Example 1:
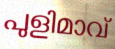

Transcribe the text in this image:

പുളിമാവ്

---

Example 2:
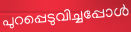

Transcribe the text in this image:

പുറപ്പെടുവിച്ചപ്പോൾ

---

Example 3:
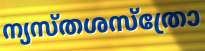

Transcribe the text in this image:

ന്യസ്തശസ്ത്രോ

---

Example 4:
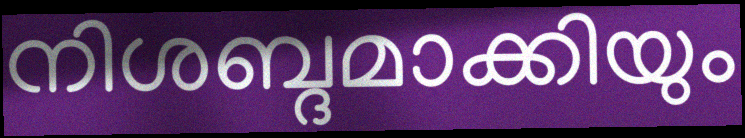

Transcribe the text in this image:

നിശബ്ദമാക്കിയും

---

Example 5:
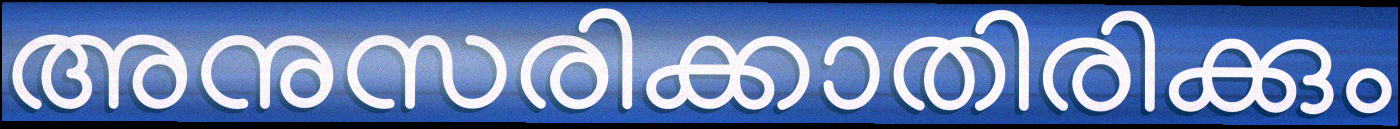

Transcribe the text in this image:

അനുസരിക്കാതിരിക്കും